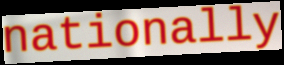
nationally